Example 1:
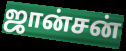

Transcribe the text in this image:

ஜான்சன்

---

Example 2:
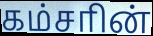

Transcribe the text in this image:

கம்சரின்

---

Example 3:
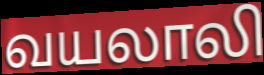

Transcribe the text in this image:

வயலாலி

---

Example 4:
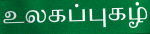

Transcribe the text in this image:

உலகப்புகழ்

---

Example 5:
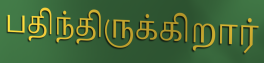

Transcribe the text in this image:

பதிந்திருக்கிறார்